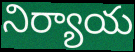
నిర్యాయ